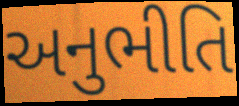
અનુભીતિ